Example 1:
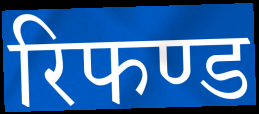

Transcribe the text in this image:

रिफण्ड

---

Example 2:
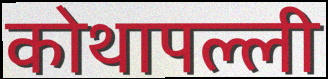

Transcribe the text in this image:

कोथापल्ली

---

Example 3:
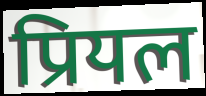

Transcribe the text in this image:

प्रियल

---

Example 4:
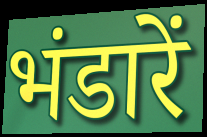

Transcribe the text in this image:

भंडारें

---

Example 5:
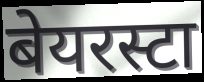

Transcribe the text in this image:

बेयरस्टा